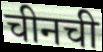
चीनची